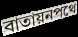
বাতায়নপথে